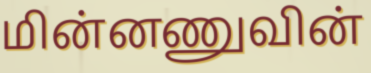
மின்னணுவின்